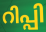
റിപ്പി